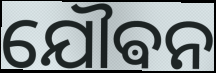
ଯୌଵନ